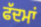
ਫੱਦਮਾਂ